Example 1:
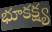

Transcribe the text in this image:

భూకక్ష్య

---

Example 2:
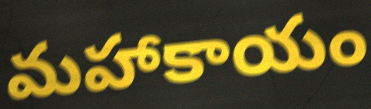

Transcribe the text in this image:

మహాకాయం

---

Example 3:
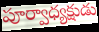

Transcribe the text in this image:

పూర్వాధ్యక్షుడు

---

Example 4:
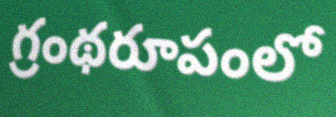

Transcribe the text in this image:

గ్రంథరూపంలో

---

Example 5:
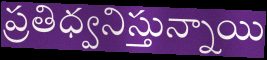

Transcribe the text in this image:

ప్రతిధ్వనిస్తున్నాయి